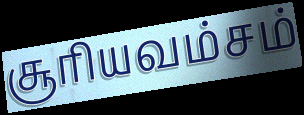
சூரியவம்சம்